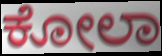
ಕೋಲಾ